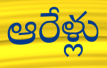
ఆరేళ్లు